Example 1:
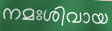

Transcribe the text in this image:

നമഃശിവായ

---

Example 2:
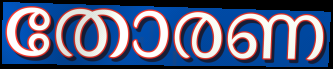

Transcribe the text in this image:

തോരണ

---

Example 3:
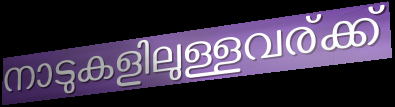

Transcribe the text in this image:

നാടുകളിലുള്ളവര്ക്ക്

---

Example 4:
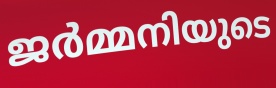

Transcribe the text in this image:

ജർമ്മനിയുടെ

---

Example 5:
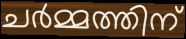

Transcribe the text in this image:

ചർമ്മത്തിന്